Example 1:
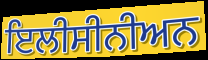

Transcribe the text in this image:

ਇਲੀਸੀਨੀਅਨ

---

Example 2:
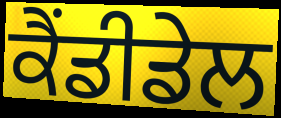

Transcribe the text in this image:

ਕੈਂਡੀਡੇਲ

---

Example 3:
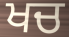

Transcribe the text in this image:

ਖਚ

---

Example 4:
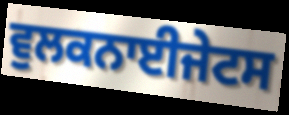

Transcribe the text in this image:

ਵੁਲਕਨਾਈਜੇਟਸ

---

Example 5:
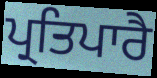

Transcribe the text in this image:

ਪ੍ਰਤਿਪਾਰੈ